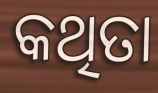
କଥିତା